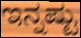
ಇನ್ನಷ್ಟು